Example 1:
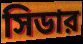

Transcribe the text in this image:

সিডার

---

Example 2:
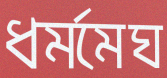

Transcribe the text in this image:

ধর্মমেঘ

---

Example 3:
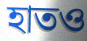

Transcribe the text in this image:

হাতও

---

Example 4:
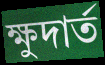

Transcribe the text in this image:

ক্ষুদার্ত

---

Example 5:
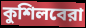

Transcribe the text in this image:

কুশিলবেরা